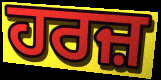
ਹਰਜ਼